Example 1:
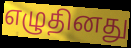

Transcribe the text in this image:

எழுதினது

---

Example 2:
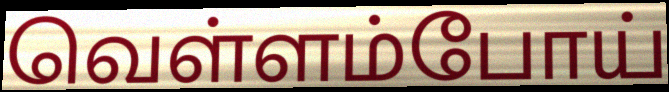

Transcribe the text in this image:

வெள்ளம்போய்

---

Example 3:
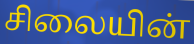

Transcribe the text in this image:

சிலையின்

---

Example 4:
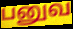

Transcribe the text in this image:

பனுவ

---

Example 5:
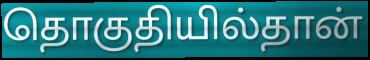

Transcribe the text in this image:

தொகுதியில்தான்